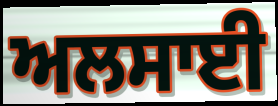
ਅਲਸਾਈ